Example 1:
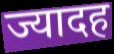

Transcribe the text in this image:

ज्यादह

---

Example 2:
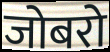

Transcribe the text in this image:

जोबरो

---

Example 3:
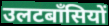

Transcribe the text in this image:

उलटबाँसियों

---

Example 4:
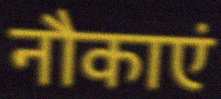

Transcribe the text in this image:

नौकाएं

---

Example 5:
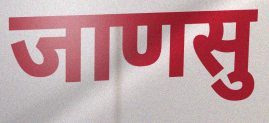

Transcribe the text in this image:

जाणसु